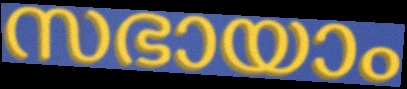
സഭായാം